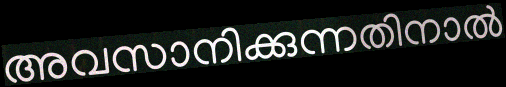
അവസാനിക്കുന്നതിനാൽ